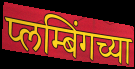
प्लम्बिंगच्या